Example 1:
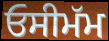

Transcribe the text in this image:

ਓਸੀਮੱਮ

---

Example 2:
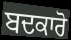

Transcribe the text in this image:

ਬਦਕਾਰੋ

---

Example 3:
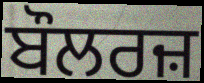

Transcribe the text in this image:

ਬੌਲਰਜ਼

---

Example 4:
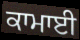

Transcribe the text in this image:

ਕਾਮਾਈ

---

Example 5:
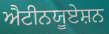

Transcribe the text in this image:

ਐਟੀਨਯੂਏਸ਼ਨ